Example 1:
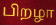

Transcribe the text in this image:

பிறழா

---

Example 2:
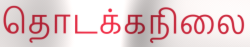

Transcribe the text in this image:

தொடக்கநிலை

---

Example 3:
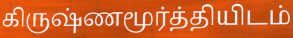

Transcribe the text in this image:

கிருஷ்ணமூர்த்தியிடம்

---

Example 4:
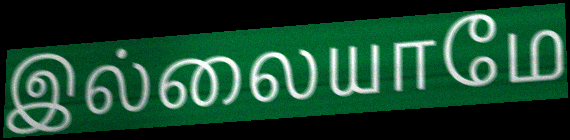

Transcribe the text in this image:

இல்லையாமே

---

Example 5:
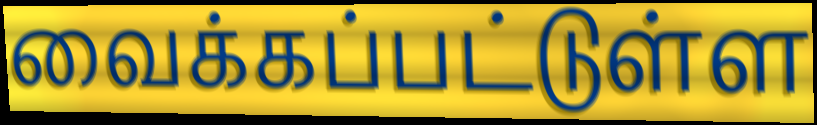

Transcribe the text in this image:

வைக்கப்பட்டுள்ள